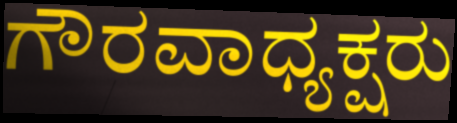
ಗೌರವಾಧ್ಯಕ್ಷರು